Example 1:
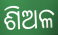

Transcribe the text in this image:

ଶିଅଳ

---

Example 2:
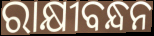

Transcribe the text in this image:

ରାକ୍ଷୀବନ୍ଧନ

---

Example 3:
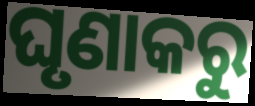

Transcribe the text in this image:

ଘୃଣାକରୁ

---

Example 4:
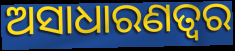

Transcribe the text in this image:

ଅସାଧାରଣତ୍ୱର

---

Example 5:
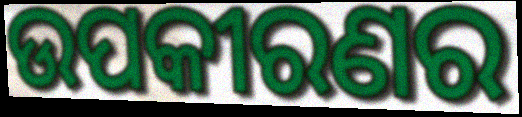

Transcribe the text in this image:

ଉପକୀରଣର